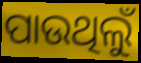
ପାଉଥିଲୁଁ